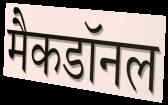
मैकडॉनल